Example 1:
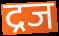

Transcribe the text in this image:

द्रज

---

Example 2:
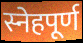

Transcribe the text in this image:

स्नेहपूर्ण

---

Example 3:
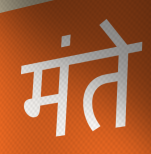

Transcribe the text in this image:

मंते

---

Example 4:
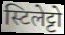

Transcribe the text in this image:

स्टिलेट्टो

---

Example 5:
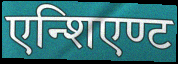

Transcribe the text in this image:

एन्शिएण्ट